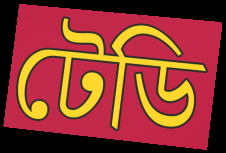
টেডি